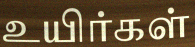
உயிர்கள்